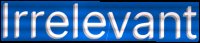
Irrelevant